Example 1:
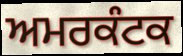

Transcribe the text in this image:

ਅਮਰਕੰਟਕ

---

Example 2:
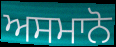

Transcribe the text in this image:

ਅਸਮਾਨੋ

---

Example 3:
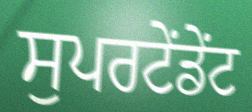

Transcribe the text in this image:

ਸੁਪਰਟੇਂਡੇਂਟ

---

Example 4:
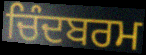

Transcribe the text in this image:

ਚਿੰਦਬਰਮ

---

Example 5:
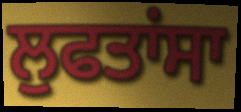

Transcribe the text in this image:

ਲੁਫਤਾਂਸਾ